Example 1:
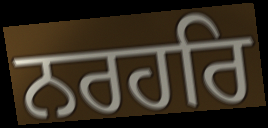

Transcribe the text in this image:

ਨਰਹਰਿ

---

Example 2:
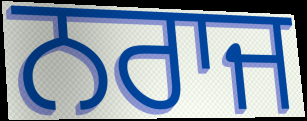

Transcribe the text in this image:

ਨਰਾਜ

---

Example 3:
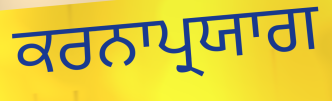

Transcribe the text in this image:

ਕਰਨਾਪ੍ਰਯਾਗ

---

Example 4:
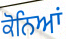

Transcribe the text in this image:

ਕੋਨਿਆਂ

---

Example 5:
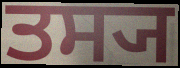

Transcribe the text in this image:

ਤਸ੍ਯ